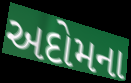
અદોમના